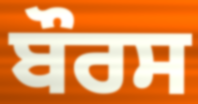
ਬੌਰਸ